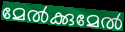
മേൽക്കുമേൽ